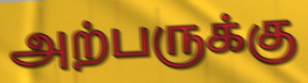
அற்பருக்கு